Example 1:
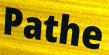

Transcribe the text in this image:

Pathe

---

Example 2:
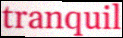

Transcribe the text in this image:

tranquil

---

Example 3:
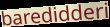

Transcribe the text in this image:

baredidderi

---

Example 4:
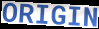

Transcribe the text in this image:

ORIGIN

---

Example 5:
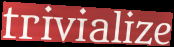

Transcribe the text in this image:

trivialize